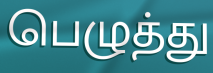
பெழுத்து